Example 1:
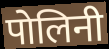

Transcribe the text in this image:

पोलिनी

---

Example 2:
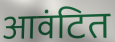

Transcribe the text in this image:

आवंटित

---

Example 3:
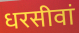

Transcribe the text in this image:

धरसीवां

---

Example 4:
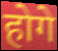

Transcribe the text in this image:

होगे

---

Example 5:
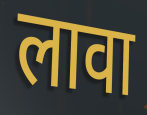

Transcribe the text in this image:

लावा